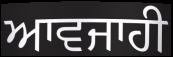
ਆਵਜਾਹੀ